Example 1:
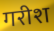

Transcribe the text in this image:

गरीश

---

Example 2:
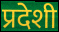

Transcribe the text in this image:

प्रदेशी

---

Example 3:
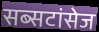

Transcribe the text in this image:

सब्सटांसेज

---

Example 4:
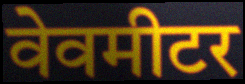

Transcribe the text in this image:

वेवमीटर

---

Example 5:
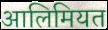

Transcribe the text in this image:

आलिमियत